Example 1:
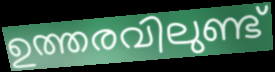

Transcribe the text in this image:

ഉത്തരവിലുണ്ട്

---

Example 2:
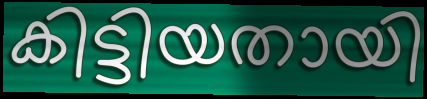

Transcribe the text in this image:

കിട്ടിയതായി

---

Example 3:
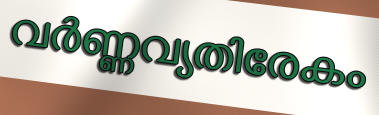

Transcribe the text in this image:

വർണ്ണവ്യതിരേകം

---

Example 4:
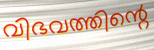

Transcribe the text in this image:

വിഭവത്തിന്റെ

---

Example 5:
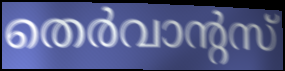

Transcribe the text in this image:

തെർവാന്റസ്